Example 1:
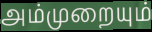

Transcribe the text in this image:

அம்முறையும்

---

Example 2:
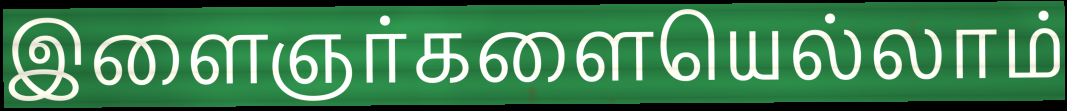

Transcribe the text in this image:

இளைஞர்களையெல்லாம்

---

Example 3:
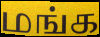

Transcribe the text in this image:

மங்க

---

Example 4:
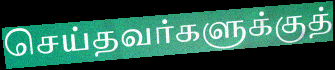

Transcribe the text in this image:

செய்தவர்களுக்குத்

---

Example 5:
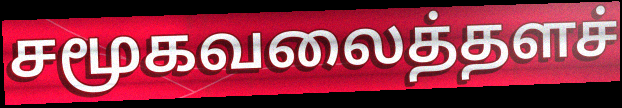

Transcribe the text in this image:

சமூகவலைத்தளச்